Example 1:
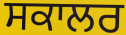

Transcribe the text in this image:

ਸਕਾਲਰ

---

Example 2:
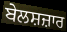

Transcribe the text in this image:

ਬੇਲਸ਼ਜ਼ਾਰ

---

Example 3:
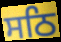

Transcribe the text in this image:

ਸਠਿ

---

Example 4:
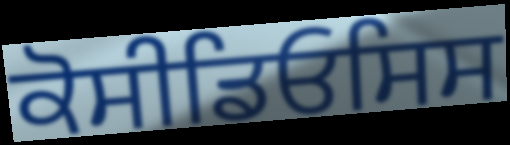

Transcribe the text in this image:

ਕੋਸੀਡਿਓਸਿਸ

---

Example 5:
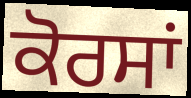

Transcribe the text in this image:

ਕੋਰਸਾਂ